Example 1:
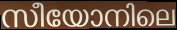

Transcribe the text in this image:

സീയോനിലെ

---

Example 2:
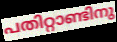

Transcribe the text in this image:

പതിറ്റാണ്ടിനു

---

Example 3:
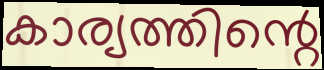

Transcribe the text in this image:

കാര്യത്തിന്റെ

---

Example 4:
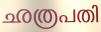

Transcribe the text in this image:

ഛത്രപതി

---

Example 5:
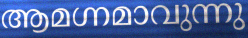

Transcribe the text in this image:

ആമഗ്നമാവുന്നു